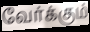
வேர்க்கும்